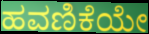
ಹವಣಿಕೆಯೇ